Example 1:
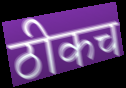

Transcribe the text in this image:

ठीकच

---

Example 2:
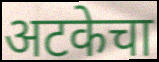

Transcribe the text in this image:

अटकेचा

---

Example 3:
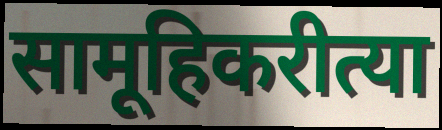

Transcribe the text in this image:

सामूहिकरीत्या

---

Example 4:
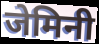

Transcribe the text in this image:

जेमिनी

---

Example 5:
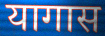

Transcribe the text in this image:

यागास